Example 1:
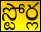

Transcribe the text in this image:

స్టోర్ల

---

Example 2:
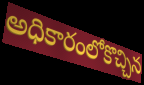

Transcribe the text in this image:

అధికారంలోకొచ్చిన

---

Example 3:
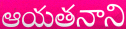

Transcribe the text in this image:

ఆయతనాని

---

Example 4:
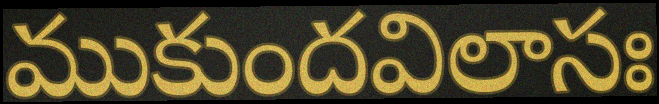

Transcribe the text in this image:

ముకుందవిలాసః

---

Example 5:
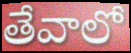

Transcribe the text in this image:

తేవాలో